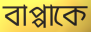
বাপ্পাকে